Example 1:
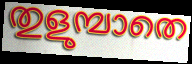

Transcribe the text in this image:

തുളുമ്പാതെ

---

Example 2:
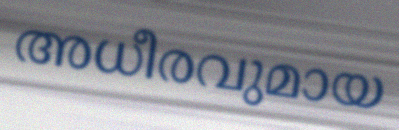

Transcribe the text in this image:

അധീരവുമായ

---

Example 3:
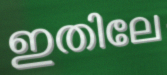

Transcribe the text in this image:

ഇതിലേ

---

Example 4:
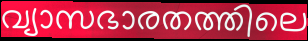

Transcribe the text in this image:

വ്യാസഭാരതത്തിലെ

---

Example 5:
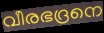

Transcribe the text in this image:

വീരഭദ്രനെ